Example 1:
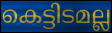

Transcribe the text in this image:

കെട്ടിടമല്ല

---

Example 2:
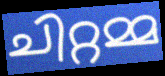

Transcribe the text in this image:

ചിറ്റമ്മ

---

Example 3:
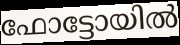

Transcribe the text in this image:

ഫോട്ടോയിൽ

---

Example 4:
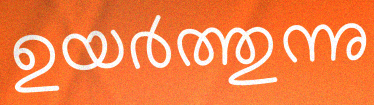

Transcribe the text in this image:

ഉയർത്തുന്നു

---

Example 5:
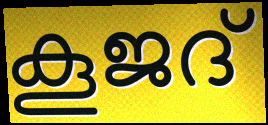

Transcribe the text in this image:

കൂജദ്